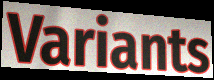
Variants